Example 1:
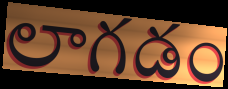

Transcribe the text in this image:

లాగడం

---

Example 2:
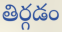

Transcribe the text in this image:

తిర్గడం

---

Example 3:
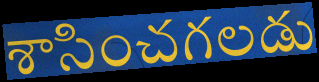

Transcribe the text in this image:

శాసించగలడు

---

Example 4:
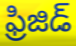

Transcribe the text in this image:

ఫ్రిజిడ్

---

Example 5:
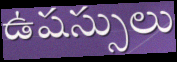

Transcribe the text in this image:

ఉషస్సులు